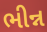
ભીન્ન